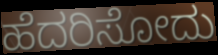
ಹೆದರಿಸೋದು